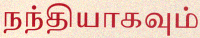
நந்தியாகவும்